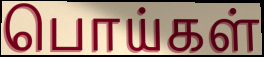
பொய்கள்